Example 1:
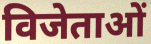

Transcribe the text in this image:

विजेताओं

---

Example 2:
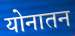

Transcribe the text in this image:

योनातन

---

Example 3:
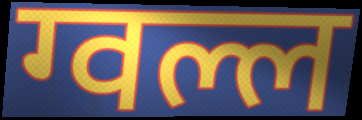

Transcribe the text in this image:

ग्वल्ल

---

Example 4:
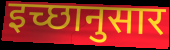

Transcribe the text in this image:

इच्छानुसार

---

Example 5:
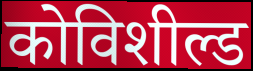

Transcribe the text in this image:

कोविशील्ड